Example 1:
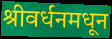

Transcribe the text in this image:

श्रीवर्धनमधून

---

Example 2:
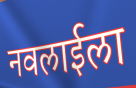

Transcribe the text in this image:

नवलाईला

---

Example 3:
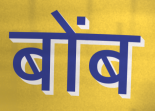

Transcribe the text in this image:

बोंब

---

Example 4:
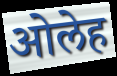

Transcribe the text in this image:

ओलेह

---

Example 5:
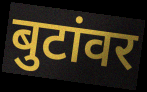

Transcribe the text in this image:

बुटांवर